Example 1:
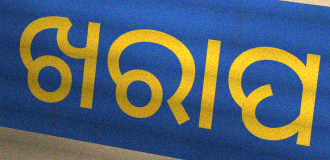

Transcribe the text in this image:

ଖରାପ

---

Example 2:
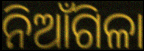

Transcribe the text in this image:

ନିଆଁଗିଳା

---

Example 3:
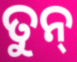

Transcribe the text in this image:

ତୁନ୍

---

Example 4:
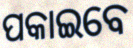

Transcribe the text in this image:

ପକାଇବେ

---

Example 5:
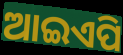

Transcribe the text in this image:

ଆଇଏପି